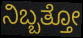
ನಿಬ್ಬತ್ತೋ